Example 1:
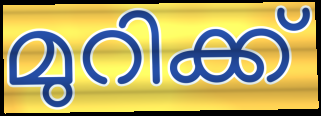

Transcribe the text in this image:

മുറിക്ക്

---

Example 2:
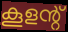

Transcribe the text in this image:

കൂളന്റ്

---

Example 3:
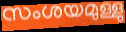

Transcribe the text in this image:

സംശയമുള്ളു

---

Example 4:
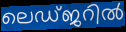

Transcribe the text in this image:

ലെഡ്ജറിൽ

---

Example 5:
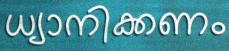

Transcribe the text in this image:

ധ്യാനിക്കണം